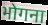
भोगना